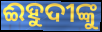
ଈହୁଦୀଙ୍କୁ